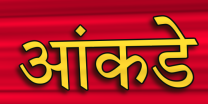
आंकडे